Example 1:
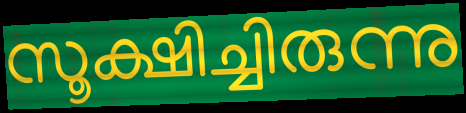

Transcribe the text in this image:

സൂക്ഷിച്ചിരുന്നു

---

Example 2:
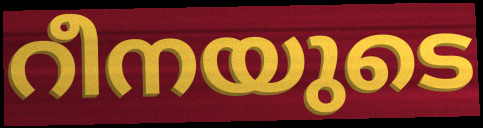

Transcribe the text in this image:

റീനയുടെ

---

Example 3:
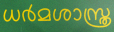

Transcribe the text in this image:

ധർമശാസ്ത്ര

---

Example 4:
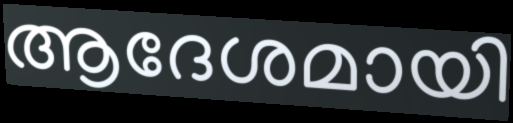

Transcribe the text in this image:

ആദേശമായി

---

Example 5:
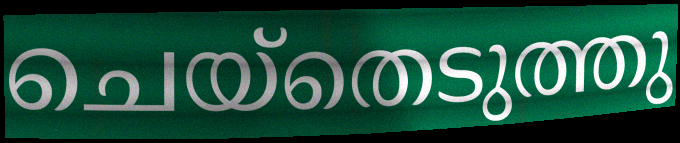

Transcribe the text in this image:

ചെയ്തെടുത്തു